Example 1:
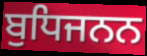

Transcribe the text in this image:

ਬੁਧਿਜਨਨ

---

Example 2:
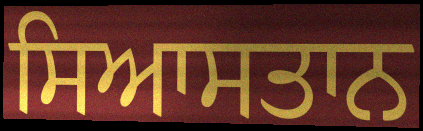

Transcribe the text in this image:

ਸਿਆਸਤਾਨ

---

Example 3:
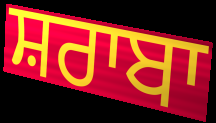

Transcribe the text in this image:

ਸ਼ਰਾਬਾ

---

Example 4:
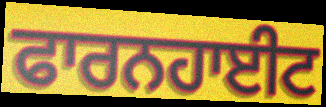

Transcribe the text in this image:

ਫਾਰਨਹਾਈਟ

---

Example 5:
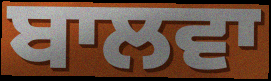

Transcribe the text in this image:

ਬਾਲਵਾ